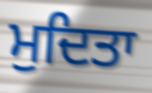
ਮੁਦਿਤਾ